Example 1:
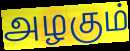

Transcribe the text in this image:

அழகும்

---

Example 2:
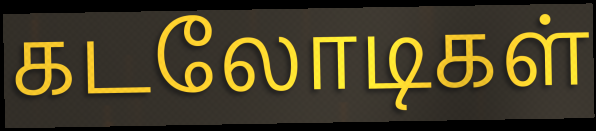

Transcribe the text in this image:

கடலோடிகள்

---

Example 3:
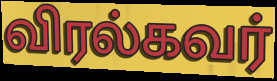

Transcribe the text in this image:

விரல்கவர்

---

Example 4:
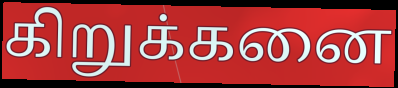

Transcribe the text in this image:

கிறுக்கனை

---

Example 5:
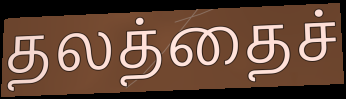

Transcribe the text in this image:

தலத்தைச்